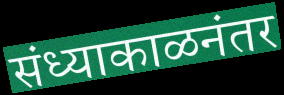
संध्याकाळनंतर